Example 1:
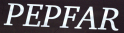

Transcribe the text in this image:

PEPFAR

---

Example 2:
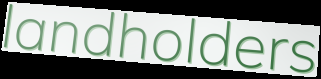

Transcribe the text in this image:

landholders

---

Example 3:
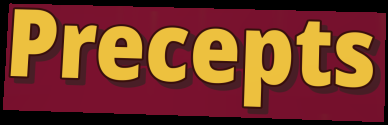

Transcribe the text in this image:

Precepts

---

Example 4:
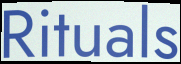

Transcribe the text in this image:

Rituals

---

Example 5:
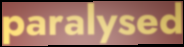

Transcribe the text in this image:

paralysed